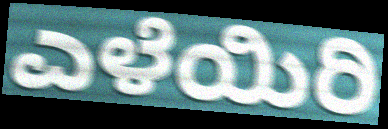
ಎಳೆಯಿರಿ